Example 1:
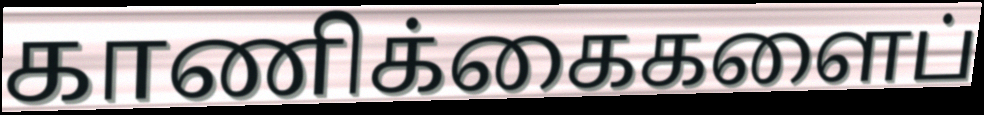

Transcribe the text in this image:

காணிக்கைகளைப்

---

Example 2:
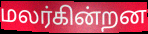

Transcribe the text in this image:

மலர்கின்றன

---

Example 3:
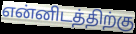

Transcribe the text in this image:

என்னிடத்திற்கு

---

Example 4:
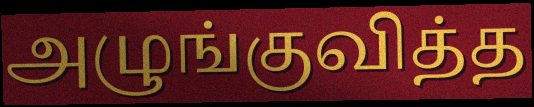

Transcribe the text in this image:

அழுங்குவித்த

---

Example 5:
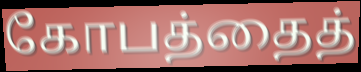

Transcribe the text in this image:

கோபத்தைத்